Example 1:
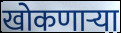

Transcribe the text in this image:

खोकणाऱ्या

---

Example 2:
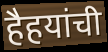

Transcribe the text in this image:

हैहयांची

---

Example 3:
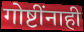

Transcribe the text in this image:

गोष्टींनाही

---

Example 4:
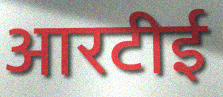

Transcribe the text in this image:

आरटीई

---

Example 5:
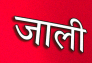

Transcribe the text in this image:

जाली